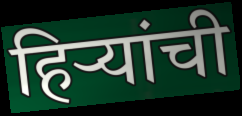
हिऱ्यांची